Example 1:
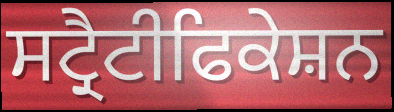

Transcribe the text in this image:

ਸਟ੍ਰੈਟੀਫਿਕੇਸ਼ਨ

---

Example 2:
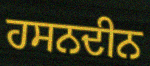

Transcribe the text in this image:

ਹਸਨਦੀਨ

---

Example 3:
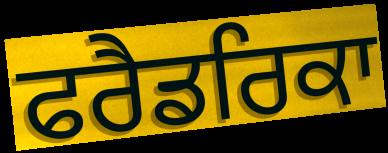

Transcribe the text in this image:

ਫਰੈਡਰਿਕਾ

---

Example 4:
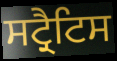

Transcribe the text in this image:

ਸਟ੍ਰੈਟਿਸ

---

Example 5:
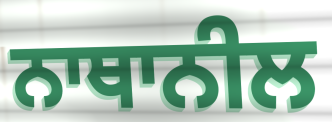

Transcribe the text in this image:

ਨਾਥਾਨੀਲ